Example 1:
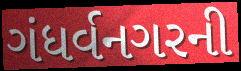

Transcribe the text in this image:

ગંધર્વનગરની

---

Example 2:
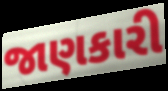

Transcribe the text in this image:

જાણકારી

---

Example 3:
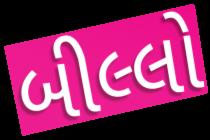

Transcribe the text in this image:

બીલ્લો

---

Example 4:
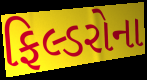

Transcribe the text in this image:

ફિલ્ડરોના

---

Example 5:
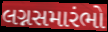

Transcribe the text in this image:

લગ્નસમારંભો